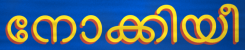
നോക്കിയീ